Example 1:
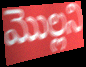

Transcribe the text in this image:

మొల్లని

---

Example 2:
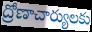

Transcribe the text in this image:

ద్రోణాచార్యులకు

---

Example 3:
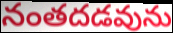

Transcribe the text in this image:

నంతదడవును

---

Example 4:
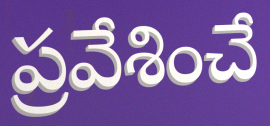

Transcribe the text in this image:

ప్రవేశించే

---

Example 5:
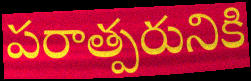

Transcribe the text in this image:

పరాత్పరునికి